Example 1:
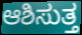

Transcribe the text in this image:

ಆಶಿಸುತ್ತ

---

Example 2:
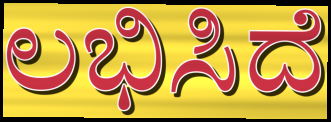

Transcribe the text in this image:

ಲಭಿಸಿದೆ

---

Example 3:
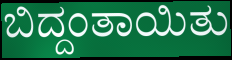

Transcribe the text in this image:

ಬಿದ್ದಂತಾಯಿತು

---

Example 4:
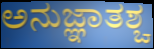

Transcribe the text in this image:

ಅನುಜ್ಞಾತಶ್ಚ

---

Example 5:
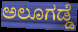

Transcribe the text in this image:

ಅಲೂಗಡ್ಡೆ